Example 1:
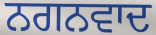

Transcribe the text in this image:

ਨਗਨਵਾਦ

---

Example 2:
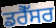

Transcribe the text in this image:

ਡਰੈੱਸਰ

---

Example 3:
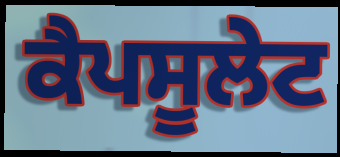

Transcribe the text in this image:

ਕੈਪਸੂਲੇਟ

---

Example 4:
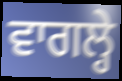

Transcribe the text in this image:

ਵਾਗਲ੍ਹੇ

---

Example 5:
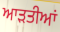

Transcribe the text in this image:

ਆਡ਼ਤੀਆਂ